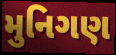
મુનિગણ